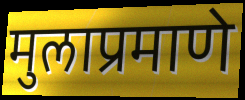
मुलाप्रमाणे